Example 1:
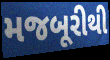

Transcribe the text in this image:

મજબૂરીથી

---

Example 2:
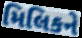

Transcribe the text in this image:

મિલિકને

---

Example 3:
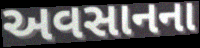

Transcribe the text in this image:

અવસાનના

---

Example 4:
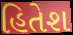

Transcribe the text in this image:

હિતેશ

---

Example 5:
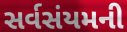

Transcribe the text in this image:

સર્વસંયમની